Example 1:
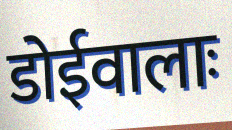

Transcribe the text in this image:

डोईवालाः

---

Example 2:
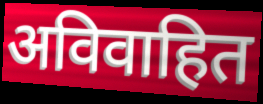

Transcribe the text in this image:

अविवाहित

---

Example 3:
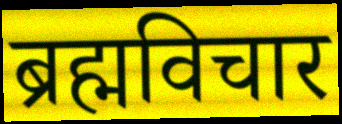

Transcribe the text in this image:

ब्रह्मविचार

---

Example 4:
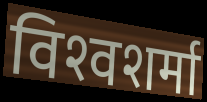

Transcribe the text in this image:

विश्वशर्मा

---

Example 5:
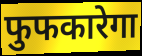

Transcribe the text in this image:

फुफकारेगा